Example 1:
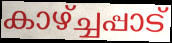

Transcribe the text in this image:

കാഴ്ച്ചപ്പാട്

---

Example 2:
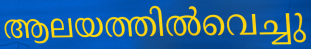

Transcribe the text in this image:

ആലയത്തിൽവെച്ചു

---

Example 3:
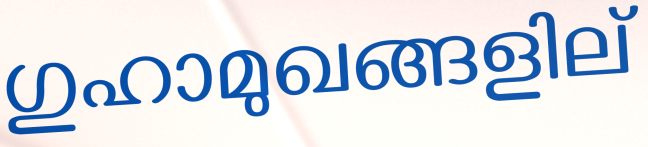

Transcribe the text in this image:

ഗുഹാമുഖങ്ങളില്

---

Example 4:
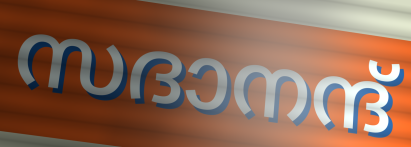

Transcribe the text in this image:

സദാനന്ദ്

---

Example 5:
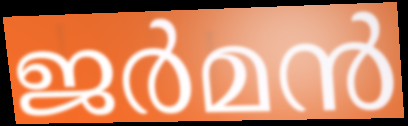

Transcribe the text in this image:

ജർമൻ